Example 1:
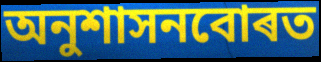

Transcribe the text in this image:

অনুশাসনবোৰত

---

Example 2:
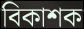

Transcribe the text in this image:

বিকাশক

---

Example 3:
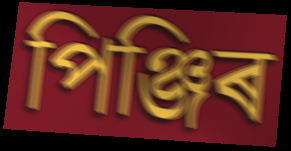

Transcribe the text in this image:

পিঞ্জিৰ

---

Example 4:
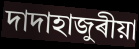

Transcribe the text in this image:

দাদাহাজুৰীয়া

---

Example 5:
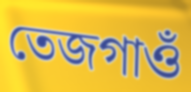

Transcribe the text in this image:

তেজগাওঁ